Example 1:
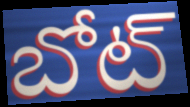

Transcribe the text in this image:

బోట్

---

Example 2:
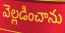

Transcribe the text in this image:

వెల్లడించాను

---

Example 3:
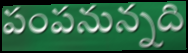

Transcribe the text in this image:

పంపనున్నది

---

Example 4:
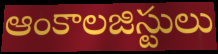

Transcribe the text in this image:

ఆంకాలజిస్టులు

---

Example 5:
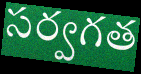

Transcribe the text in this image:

సర్వగత